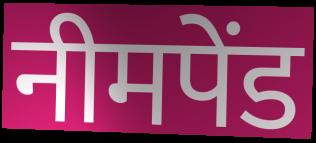
नीमपेंड